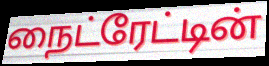
நைட்ரேட்டின்